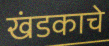
खंडकाचे